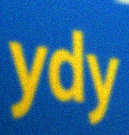
ydy